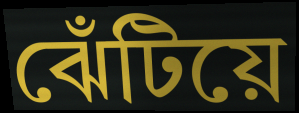
ঝেঁটিয়ে